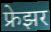
फ्रेझर